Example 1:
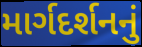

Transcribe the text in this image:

માર્ગદર્શનનું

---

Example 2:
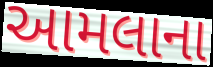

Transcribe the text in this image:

આમલાના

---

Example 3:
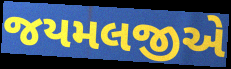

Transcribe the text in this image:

જયમલજીએ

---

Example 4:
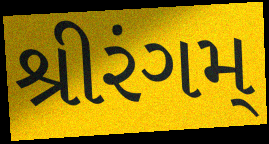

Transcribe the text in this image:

શ્રીરંગમ્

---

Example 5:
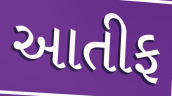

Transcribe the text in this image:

આતીફ